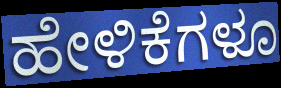
ಹೇಳಿಕೆಗಳೂ